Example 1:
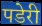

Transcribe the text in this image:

पडेरी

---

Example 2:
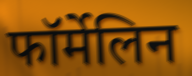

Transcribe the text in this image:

फॉर्मेलिन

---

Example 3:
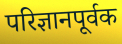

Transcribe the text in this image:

परिज्ञानपूर्वक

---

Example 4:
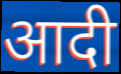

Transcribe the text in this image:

आदी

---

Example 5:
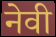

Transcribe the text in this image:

नेवी